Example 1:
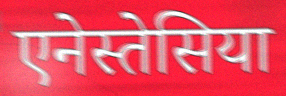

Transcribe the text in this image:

एनेस्तेसिया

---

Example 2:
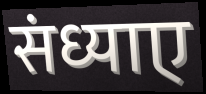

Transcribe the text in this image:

संध्याए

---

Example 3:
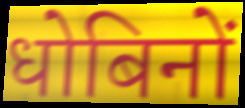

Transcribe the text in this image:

धोबिनों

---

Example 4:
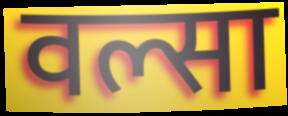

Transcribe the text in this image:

वल्सा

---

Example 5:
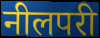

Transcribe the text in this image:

नीलपरी